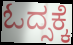
ಓದ್ಸಕ್ಕೆ